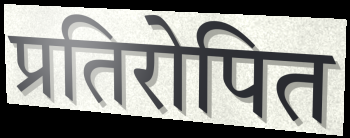
प्रतिरोपित